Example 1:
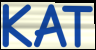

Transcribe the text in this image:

KAT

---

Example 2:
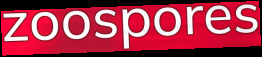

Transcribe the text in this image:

zoospores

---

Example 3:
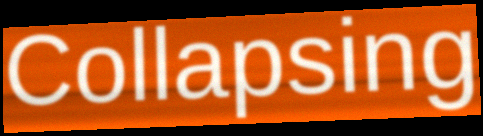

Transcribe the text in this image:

Collapsing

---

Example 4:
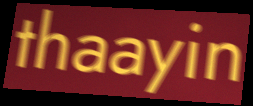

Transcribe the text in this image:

thaayin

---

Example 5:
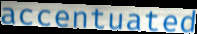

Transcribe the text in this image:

accentuated